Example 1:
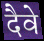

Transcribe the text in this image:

दैवे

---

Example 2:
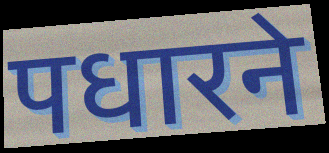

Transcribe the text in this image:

पधारने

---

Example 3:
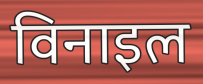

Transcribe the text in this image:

विनाइल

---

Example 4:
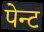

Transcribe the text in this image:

पेन्ट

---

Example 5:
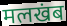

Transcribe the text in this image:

मलखंब